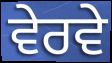
ਵੇਰਵੇ